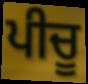
ਪੀਚੂ